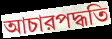
আচারপদ্ধতি